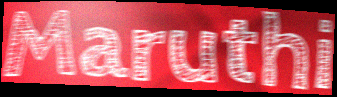
Maruthi